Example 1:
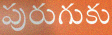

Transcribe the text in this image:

పురుగుకు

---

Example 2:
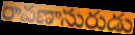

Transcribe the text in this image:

రావణాసురుడు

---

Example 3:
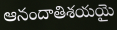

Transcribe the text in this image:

ఆనందాతిశయయై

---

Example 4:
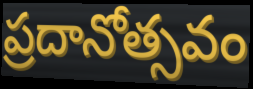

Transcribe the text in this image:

ప్రదానోత్సవం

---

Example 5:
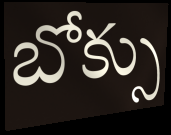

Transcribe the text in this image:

బోక్సు